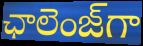
ఛాలెంజ్‌గా